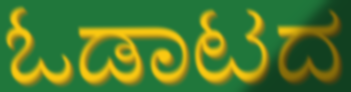
ಓಡಾಟದ